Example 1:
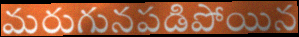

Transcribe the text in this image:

మరుగునపడిపోయిన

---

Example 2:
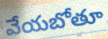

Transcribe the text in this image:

వేయబోతూ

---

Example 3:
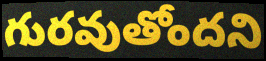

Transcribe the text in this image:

గురవుతోందని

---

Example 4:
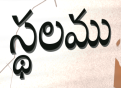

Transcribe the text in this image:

స్థలము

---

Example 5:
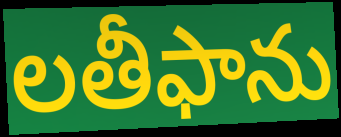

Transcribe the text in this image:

లతీఫాను